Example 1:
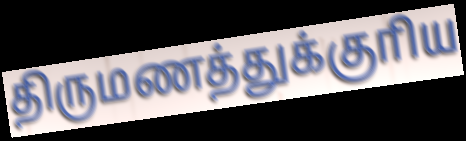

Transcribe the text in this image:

திருமணத்துக்குரிய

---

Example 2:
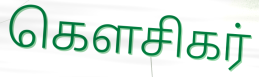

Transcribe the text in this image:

கௌசிகர்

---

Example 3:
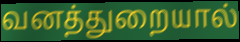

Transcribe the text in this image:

வனத்துறையால்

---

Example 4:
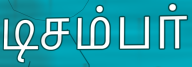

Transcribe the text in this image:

டிசம்பர்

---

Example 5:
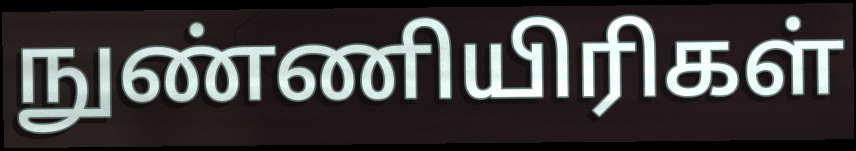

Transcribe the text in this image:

நுண்ணியிரிகள்